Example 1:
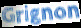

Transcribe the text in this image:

Grignon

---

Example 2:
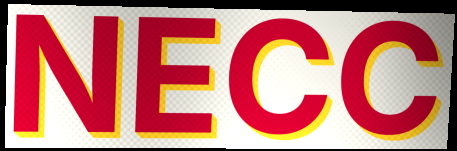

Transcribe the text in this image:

NECC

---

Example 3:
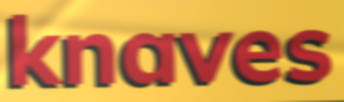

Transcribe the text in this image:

knaves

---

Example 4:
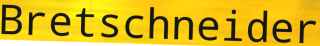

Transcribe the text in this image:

Bretschneider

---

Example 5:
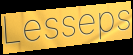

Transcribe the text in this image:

Lesseps